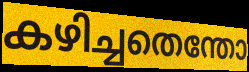
കഴിച്ചതെന്തോ